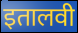
इतालवी